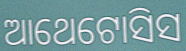
ଆଥେଟୋସିସ